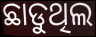
ଛାଡୁଥିଲ